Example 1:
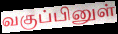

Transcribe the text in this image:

வகுப்பினுள்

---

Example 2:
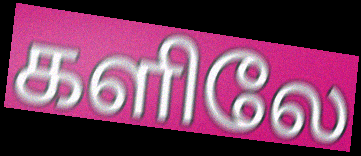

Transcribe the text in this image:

களிலே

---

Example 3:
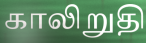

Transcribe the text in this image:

காலிறுதி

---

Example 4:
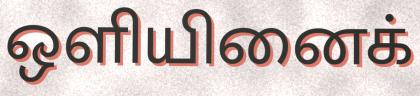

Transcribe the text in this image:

ஒளியினைக்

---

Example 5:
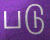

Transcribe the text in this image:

படு